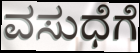
ವಸುಧೆಗೆ